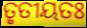
ତୃତୀୟତଃ